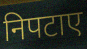
निपटाए